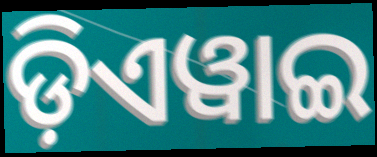
ଡ଼ିଏୱାଇ